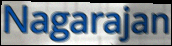
Nagarajan